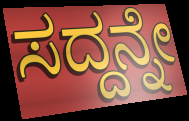
ಸದ್ದನ್ನೇ